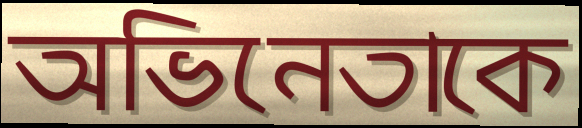
অভিনেতাকে